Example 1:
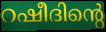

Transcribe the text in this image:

റഷീദിന്റെ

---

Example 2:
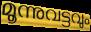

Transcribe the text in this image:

മൂന്നുവട്ടവും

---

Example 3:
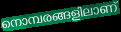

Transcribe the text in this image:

നൊമ്പരങ്ങളിലാണ്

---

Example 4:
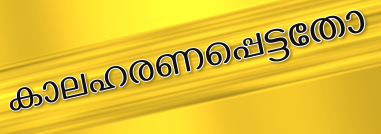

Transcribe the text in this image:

കാലഹരണപ്പെട്ടതോ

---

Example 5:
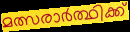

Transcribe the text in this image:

മത്സരാർത്ഥിക്ക്